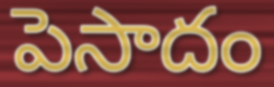
పెసాదం